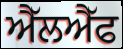
ਐੱਲਐੱਫ